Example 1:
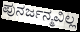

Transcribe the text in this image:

ಪುನರ್ಜನ್ಮವಿಲ್ಲ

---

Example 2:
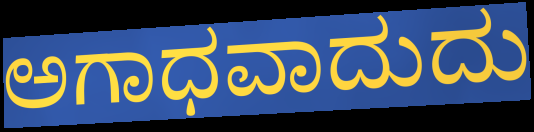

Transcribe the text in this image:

ಅಗಾಧವಾದುದು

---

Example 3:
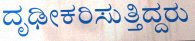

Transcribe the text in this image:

ದೃಢೀಕರಿಸುತ್ತಿದ್ದರು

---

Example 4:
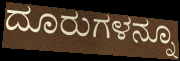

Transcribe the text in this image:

ದೂರುಗಳನ್ನೂ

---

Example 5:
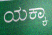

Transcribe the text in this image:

ಯಕ್ಕಾ